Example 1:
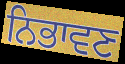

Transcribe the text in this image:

ਨਿਭਾਵਣ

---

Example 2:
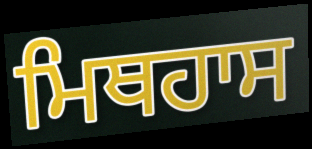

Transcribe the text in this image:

ਮਿਥਹਾਸ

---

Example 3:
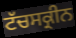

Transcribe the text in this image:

ਟੱਚਸਕ੍ਰੀਨ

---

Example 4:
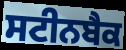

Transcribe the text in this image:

ਸਟੀਨਬੈਕ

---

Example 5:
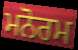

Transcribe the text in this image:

ਮਨੋਰਮ